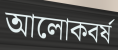
আলোকবৰ্ষ